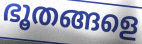
ഭൂതങ്ങളെ